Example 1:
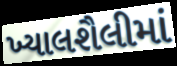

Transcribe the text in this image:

ખ્યાલશૈલીમાં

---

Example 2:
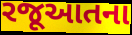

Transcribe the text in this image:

રજૂઆતના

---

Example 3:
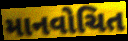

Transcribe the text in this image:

માનવોચિત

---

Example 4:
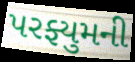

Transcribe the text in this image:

પરફ્યુમની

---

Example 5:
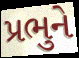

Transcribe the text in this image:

પ્રભુને